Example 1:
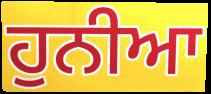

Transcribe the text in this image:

ਹੁਨੀਆ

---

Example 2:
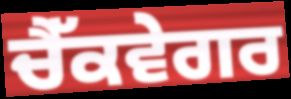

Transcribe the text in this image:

ਚੈੱਕਵੇਗਰ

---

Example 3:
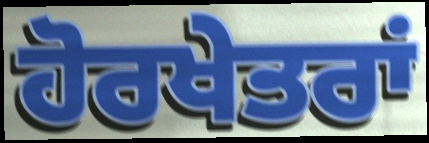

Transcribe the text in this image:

ਹੋਰਖੇਤਰਾਂ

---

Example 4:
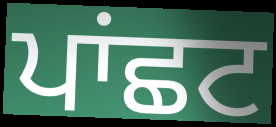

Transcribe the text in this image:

ਪਾਂਛਟ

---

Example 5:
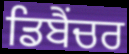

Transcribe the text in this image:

ਡਿਬੈਂਚਰ